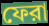
ফেরা